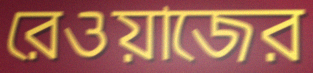
রেওয়াজের